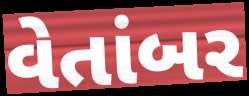
વેતાંબર